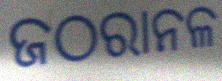
ଜଠରାନଳ